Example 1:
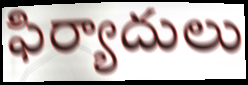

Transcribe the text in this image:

ఫిర్యాదులు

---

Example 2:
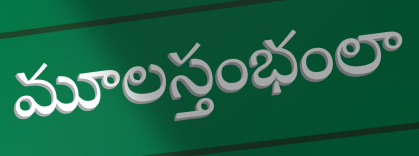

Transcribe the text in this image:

మూలస్తంభంలా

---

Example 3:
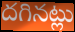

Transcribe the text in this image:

దగినట్లు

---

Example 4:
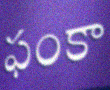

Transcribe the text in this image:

ఫంకా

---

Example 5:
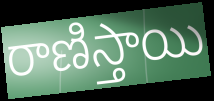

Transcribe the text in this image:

రాణిస్తాయి